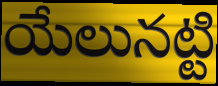
యేలునట్టి